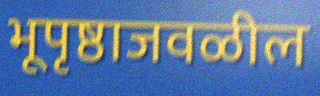
भूपृष्ठाजवळील